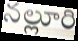
నల్లూరి